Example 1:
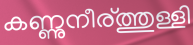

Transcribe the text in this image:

കണ്ണുനീര്ത്തുള്ളി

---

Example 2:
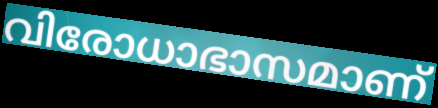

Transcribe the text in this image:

വിരോധാഭാസമാണ്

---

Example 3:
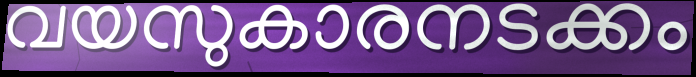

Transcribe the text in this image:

വയസുകാരനടക്കം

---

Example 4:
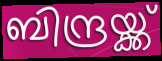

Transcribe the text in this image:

ബിന്ദ്രയ്ക്ക്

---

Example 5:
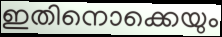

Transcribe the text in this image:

ഇതിനൊക്കെയും